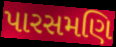
પારસમણિ